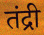
तंद्री